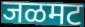
जळमट